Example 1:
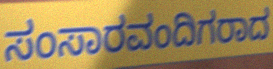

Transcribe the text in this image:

ಸಂಸಾರವಂದಿಗರಾದ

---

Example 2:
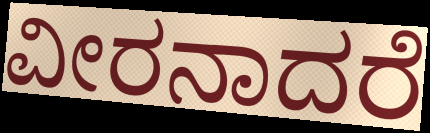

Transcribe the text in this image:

ವೀರನಾದರೆ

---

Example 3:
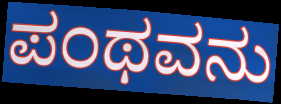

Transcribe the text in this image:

ಪಂಥವನು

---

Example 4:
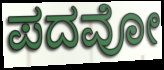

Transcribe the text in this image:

ಪದವೋ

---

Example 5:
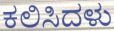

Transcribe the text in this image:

ಕಲಿಸಿದಳು